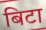
बिटा